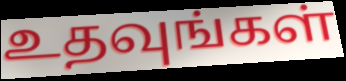
உதவுங்கள்